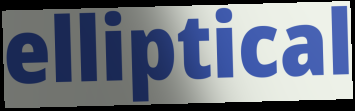
elliptical